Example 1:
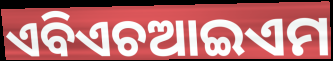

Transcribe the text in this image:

ଏବିଏଚଆଇଏମ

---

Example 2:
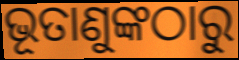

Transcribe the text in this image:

ଭୂତାଣୁଙ୍କଠାରୁ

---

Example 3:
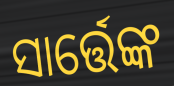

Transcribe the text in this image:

ସାର୍ତ୍ତେଙ୍କ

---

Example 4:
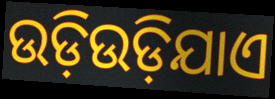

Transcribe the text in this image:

ଉଡ଼ିଉଡ଼ିଯାଏ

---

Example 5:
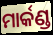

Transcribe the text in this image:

ମାର୍କଣ୍ଡ